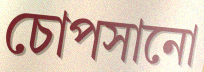
চোপসানো